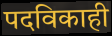
पदविकाही